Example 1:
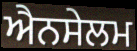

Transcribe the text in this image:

ਐਨਸੇਲਮ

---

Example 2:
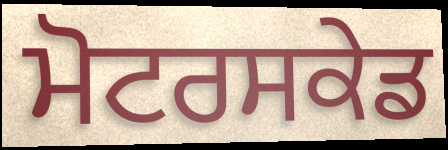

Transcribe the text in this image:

ਮੋਟਰਸਕੇਡ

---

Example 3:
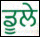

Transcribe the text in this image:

ਡੂਲੇ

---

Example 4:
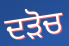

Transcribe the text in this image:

ਦੜੋਚ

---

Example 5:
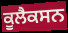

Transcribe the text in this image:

ਕੂਲੈਕਸਨ